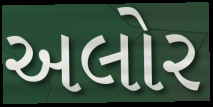
અલોર